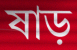
ষাড়